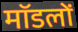
मॉडलों